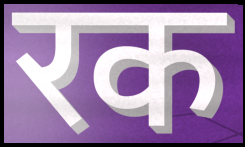
रक